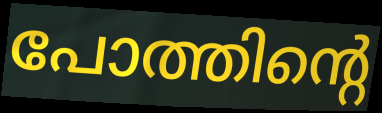
പോത്തിന്റെ